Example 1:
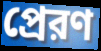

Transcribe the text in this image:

প্রেরণ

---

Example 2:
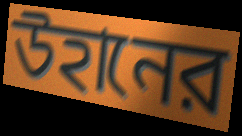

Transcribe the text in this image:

উহানের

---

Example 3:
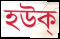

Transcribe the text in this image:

হউক্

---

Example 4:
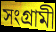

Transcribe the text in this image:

সংগ্রামী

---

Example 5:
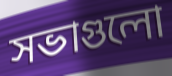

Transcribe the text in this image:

সভাগুলো